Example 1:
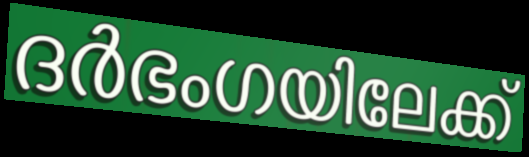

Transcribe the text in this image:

ദർഭംഗയിലേക്ക്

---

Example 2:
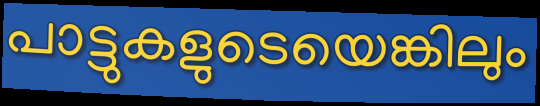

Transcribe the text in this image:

പാട്ടുകളുടെയെങ്കിലും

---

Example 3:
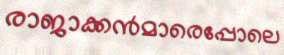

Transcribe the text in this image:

രാജാക്കൻമാരെപ്പോലെ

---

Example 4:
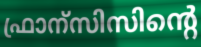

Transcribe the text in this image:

ഫ്രാന്സിസിന്റെ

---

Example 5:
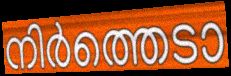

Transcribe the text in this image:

നിർത്തെടാ